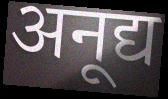
अनूद्य